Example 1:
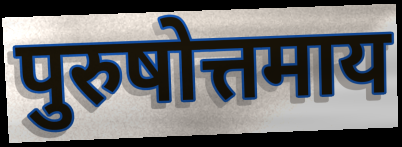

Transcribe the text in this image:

पुरुषोत्तमाय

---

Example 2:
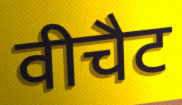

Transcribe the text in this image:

वीचैट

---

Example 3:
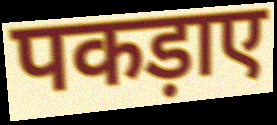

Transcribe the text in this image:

पकड़ाए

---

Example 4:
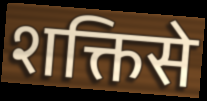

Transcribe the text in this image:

शक्तिसे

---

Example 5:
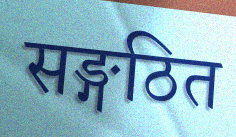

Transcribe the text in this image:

सङ्गठित